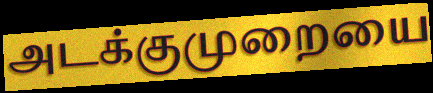
அடக்குமுறையை